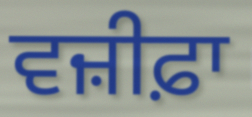
ਵਜ਼ੀਫ਼ਾ